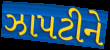
ઝાપટીને